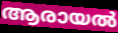
ആരായൽ